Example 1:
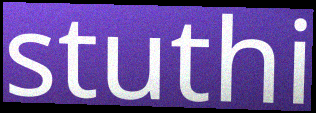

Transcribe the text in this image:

stuthi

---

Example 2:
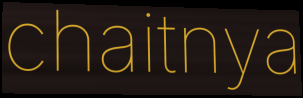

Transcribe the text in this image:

chaitnya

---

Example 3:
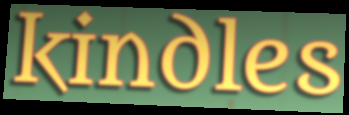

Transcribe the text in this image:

kindles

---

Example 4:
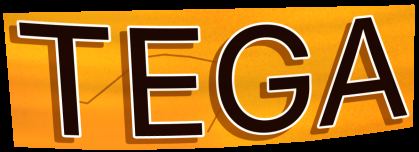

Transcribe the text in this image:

TEGA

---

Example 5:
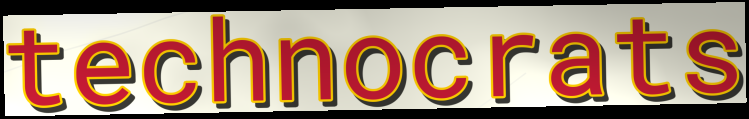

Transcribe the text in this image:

technocrats